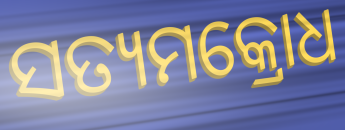
ସତ୍ୟମକ୍ରୋଧ